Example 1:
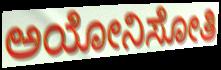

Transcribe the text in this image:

ಅಯೋನಿಸೋತಿ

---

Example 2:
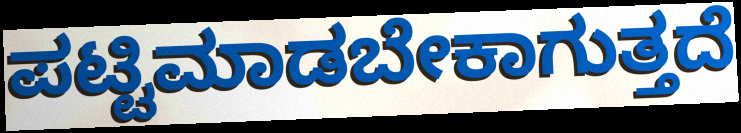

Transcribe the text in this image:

ಪಟ್ಟಿಮಾಡಬೇಕಾಗುತ್ತದೆ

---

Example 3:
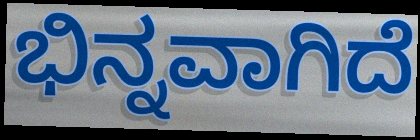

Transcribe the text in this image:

ಭಿನ್ನವಾಗಿದೆ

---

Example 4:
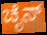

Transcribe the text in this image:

ಚೈನ್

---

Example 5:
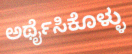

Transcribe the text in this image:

ಅರ್ಥೈಸಿಕೊಳ್ಳು